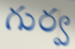
గుర్వ